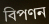
বিপণন